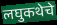
लघुकथेचे